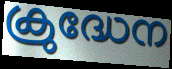
ക്രുദ്ധേന